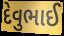
દેવુભાઈ